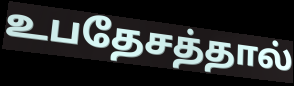
உபதேசத்தால்